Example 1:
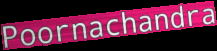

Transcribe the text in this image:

Poornachandra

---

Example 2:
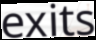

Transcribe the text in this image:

exits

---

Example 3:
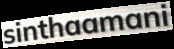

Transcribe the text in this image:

sinthaamani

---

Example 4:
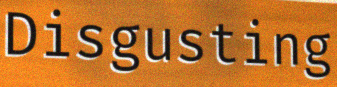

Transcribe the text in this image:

Disgusting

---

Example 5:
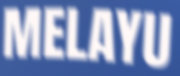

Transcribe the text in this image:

MELAYU